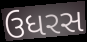
ઉધરસ